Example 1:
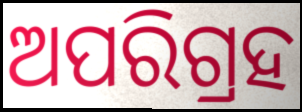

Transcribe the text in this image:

ଅପରିଗ୍ରହ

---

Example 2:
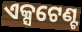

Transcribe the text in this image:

ଏକ୍ସଟେଣ୍ଟ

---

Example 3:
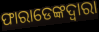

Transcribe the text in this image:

ଫାରାଡେଙ୍କଦ୍ୱାରା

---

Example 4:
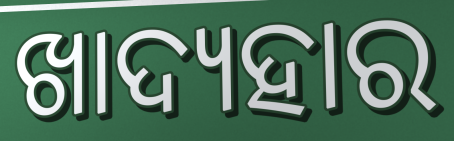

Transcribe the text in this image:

ଖାଦ୍ୟହାର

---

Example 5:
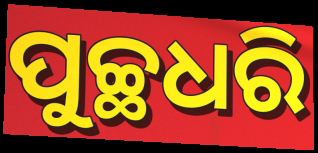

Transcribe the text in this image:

ପୁଚ୍ଛଧରି